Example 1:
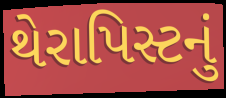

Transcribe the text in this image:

થેરાપિસ્ટનું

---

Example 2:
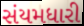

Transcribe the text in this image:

સંયમધારી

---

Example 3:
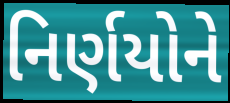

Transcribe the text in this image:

નિર્ણયોને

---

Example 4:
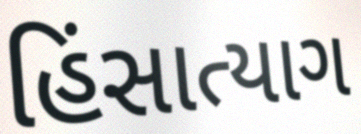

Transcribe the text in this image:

હિંસાત્યાગ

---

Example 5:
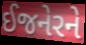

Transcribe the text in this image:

ઈજનેરને